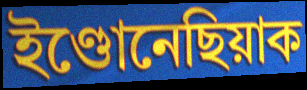
ইণ্ডোনেছিয়াক